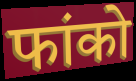
फांको